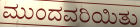
ಮುಂದವರಿಯಿತು